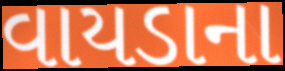
વાયડાના